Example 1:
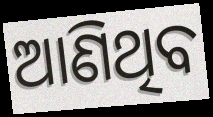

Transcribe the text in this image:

ଆଣିଥିବ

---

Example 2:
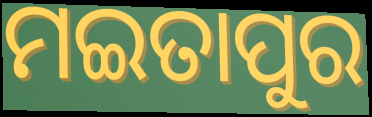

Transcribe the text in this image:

ମଇତାପୁର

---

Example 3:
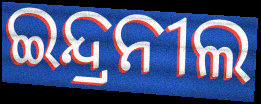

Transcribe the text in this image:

ଇନ୍ଦ୍ରନୀଲ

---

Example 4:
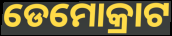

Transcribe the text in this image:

ଡେମୋକ୍ରାଟ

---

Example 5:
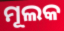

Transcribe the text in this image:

ମୂଲକ